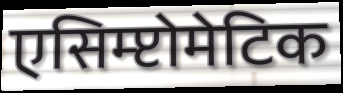
एसिम्प्टोमेटिक